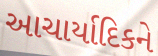
આચાર્યાદિકને